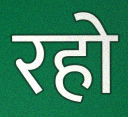
रहो